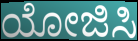
ಯೋಜಿಸಿ